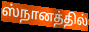
ஸ்நானத்தில்